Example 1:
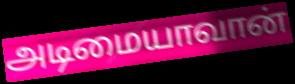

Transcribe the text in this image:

அடிமையாவான்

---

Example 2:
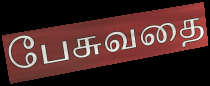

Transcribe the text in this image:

பேசுவதை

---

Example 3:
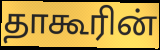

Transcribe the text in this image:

தாகூரின்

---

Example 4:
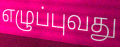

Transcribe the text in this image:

எழுப்புவது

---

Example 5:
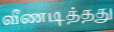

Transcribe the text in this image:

வீணடித்தது